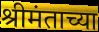
श्रीमंताच्या